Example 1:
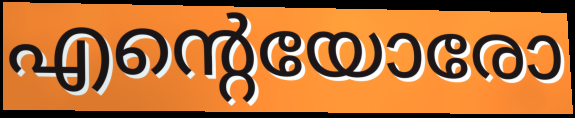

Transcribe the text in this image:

എന്റെയോരോ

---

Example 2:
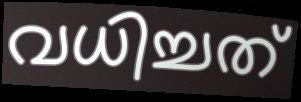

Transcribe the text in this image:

വധിച്ചത്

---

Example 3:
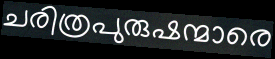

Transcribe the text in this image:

ചരിത്രപുരുഷന്മാരെ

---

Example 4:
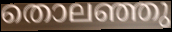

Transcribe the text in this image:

തൊലഞ്ഞു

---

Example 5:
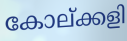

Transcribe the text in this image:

കോല്ക്കളി